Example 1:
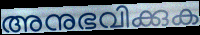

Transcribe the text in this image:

അനുഭവിക്കുക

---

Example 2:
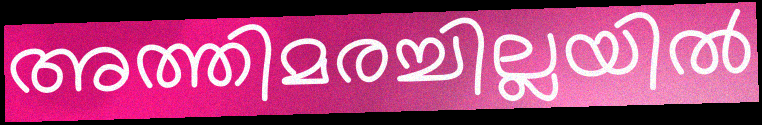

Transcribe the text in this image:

അത്തിമരച്ചില്ലയിൽ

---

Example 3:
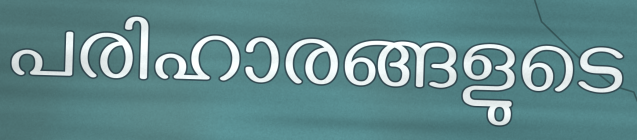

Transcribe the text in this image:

പരിഹാരങ്ങളുടെ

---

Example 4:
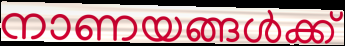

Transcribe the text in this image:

നാണയങ്ങൾക്ക്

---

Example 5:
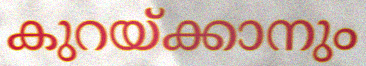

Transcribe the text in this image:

കുറയ്ക്കാനും